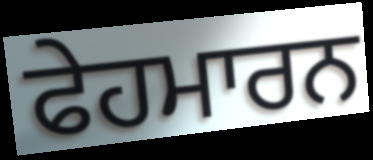
ਫੇਹਮਾਰਨ